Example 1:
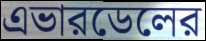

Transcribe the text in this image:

এভারডেলের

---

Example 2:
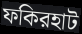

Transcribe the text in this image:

ফকিরহাট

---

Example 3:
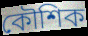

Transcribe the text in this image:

কৌশিক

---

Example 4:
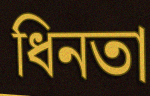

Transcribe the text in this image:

ধিনতা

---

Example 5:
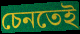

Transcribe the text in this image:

চেনতেই